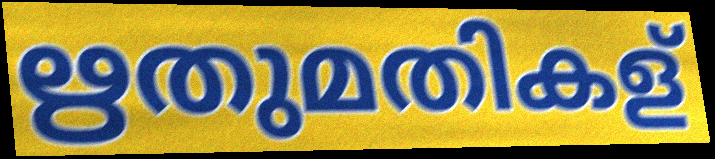
ഋതുമതികള്